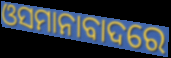
ଓସମାନାବାଦରେ